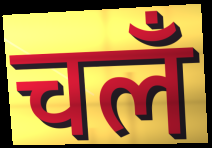
चलँ